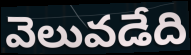
వెలువడేది